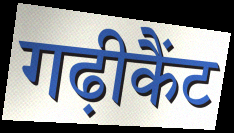
गढ़ीकैंट